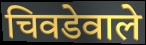
चिवडेवाले